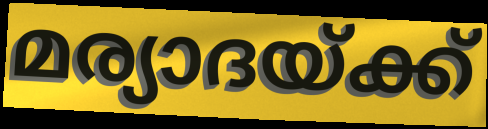
മര്യാദയ്ക്ക്